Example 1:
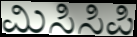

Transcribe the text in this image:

ಮಿಸಿಸಿಪಿ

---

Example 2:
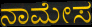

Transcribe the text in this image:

ನಾಮೇಸ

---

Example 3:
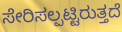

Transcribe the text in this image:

ಸೇರಿಸಲ್ಪಟ್ಟಿರುತ್ತದೆ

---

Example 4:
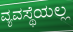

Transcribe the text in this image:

ವ್ಯವಸ್ಥೆಯಲ್ಲ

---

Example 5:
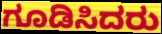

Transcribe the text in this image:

ಗೂಡಿಸಿದರು